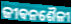
ଜୀଵନଶୈଳୀ